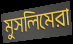
মুসলিমেরা